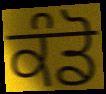
ਕੰਡੋ